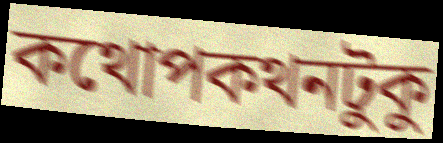
কথোপকথনটুকু